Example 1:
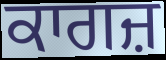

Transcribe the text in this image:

ਕਾਗਜ਼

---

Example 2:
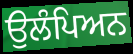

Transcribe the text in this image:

ਉਲੰਪਿਅਨ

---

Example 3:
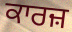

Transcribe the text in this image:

ਕਾਰਜ਼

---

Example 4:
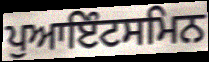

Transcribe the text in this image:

ਪੁਆਇੰਟਸਮਿਨ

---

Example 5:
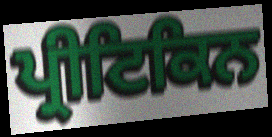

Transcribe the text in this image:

ਪ੍ਰੀਟਿਕਿਨ